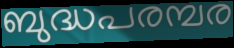
ബുദ്ധപരമ്പര